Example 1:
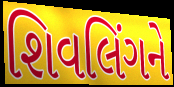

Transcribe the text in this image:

શિવલિંગને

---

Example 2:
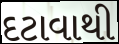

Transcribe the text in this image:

દટાવાથી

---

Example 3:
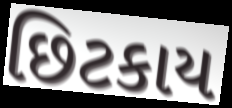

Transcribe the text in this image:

છિટકાય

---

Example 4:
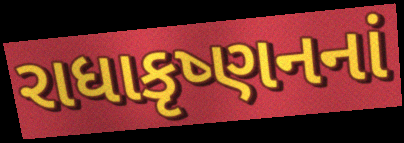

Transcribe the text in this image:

રાધાકૃષ્ણનનાં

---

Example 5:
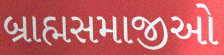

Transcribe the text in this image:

બ્રાહ્મસમાજીઓ